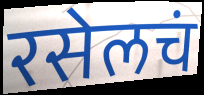
रसेलचं